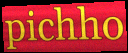
pichho